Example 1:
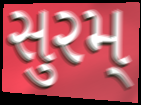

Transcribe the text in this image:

સુરમ્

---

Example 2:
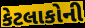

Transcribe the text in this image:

કેટલાકોની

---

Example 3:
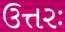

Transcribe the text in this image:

ઉત્તરઃ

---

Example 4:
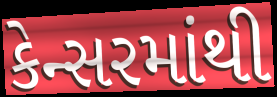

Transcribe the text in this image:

કેન્સરમાંથી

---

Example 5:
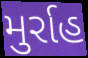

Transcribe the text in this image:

મુર્રાહ